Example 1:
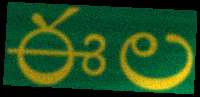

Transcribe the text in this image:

ఈల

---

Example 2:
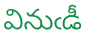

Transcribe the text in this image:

వినుఁడీ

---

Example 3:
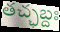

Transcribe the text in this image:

తచ్ఛబ్దః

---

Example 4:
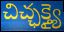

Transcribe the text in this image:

చిచ్ఛక్త్యై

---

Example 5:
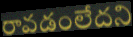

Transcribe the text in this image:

రావడంలేదని